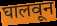
घालवून